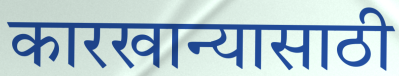
कारखान्यासाठी